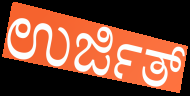
ಉರ್ಜಿತ್